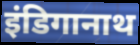
इंडिगानाथ